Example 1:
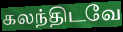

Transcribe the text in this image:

கலந்திடவே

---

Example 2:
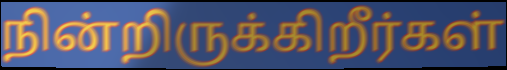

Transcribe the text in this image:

நின்றிருக்கிறீர்கள்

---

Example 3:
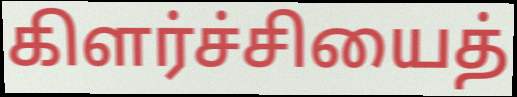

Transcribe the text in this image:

கிளர்ச்சியைத்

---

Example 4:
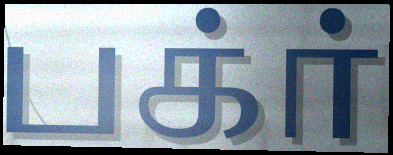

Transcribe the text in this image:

பக்ர்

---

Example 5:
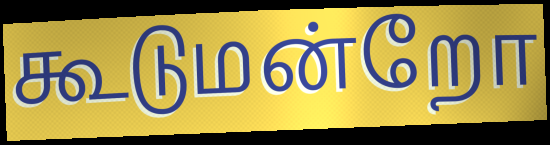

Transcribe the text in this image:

கூடுமன்றோ